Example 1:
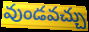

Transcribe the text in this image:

వుండవచ్చు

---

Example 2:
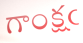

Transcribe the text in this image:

గాంక్షఁ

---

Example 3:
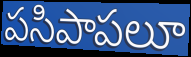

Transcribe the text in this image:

పసిపాపలూ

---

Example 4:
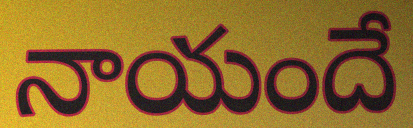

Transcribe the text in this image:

నాయందే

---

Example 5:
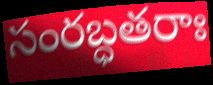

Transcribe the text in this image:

సంరబ్ధతరాః